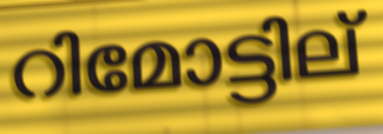
റിമോട്ടില്